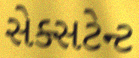
સેક્સટેન્ટ